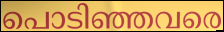
പൊടിഞ്ഞവരെ